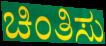
ಚಿಂತಿಸು